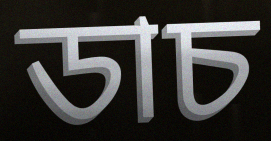
ডাচ